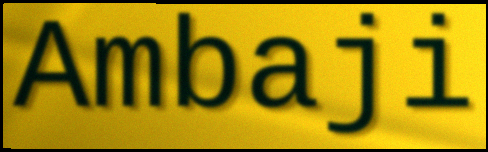
Ambaji